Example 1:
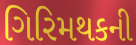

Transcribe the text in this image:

ગિરિમથકની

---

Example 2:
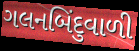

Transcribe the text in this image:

ગલનબિંદુવાળી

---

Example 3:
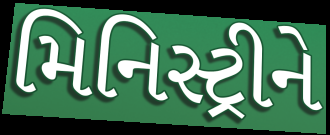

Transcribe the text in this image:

મિનિસ્ટ્રીને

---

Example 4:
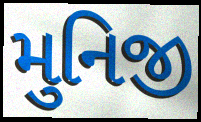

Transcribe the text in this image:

મુનિજી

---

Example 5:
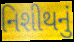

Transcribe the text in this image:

નિશીથનું